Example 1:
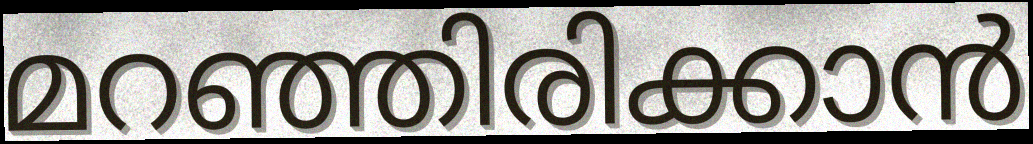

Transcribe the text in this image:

മറഞ്ഞിരിക്കാൻ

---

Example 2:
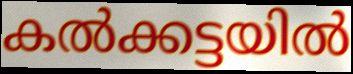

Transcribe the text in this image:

കൽക്കട്ടയിൽ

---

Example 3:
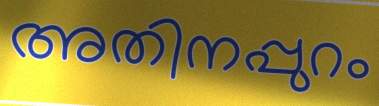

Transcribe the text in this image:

അതിനപ്പുറം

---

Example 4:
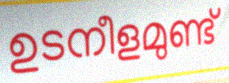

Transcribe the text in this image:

ഉടനീളമുണ്ട്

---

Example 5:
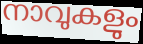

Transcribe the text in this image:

നാവുകളും